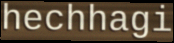
hechhagi